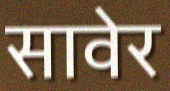
सावेर